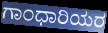
ಗಾಂಧಾರಿಯರ